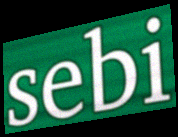
sebi